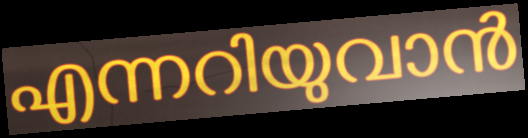
എന്നറിയുവാൻ